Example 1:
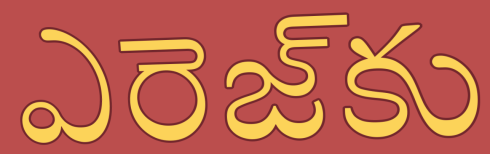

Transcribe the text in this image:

ఎరెజ్‌కు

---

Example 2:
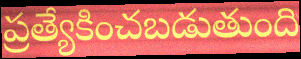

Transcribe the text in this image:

ప్రత్యేకించబడుతుంది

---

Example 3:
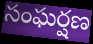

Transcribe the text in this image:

సంఘర్షణ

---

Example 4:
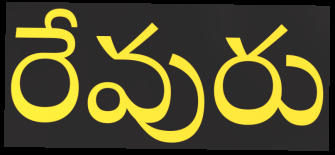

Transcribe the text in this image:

రేవురు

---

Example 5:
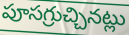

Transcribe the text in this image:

పూసగ్రుచ్చినట్లు